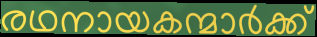
രഥനായകന്മാർക്ക്